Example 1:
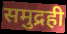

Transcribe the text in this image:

समुद्रही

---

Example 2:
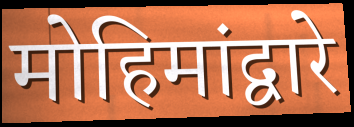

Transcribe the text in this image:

मोहिमांद्वारे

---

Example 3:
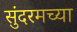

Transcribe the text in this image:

सुंदरमच्या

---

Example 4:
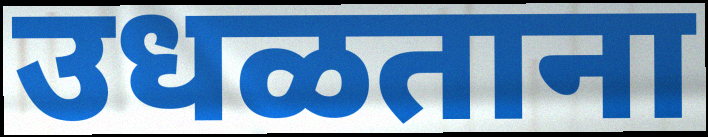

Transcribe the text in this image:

उधळताना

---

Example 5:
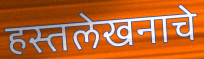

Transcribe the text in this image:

हस्तलेखनाचे